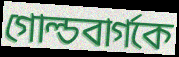
গোল্ডবার্গকে